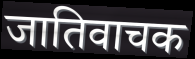
जातिवाचक